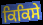
ਕਿਕਿਸੇ